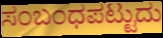
ಸಂಬಂಧಪಟ್ಟುದು